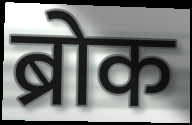
ब्रोक